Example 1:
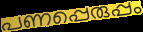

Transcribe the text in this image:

പണപ്പെരുപ്പം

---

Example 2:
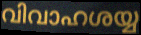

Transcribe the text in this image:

വിവാഹശയ്യ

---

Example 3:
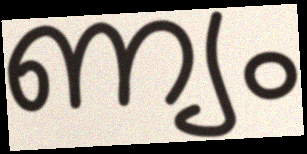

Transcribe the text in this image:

ണ്യം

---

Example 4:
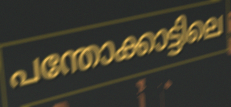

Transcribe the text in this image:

പന്തോക്കാട്ടിലെ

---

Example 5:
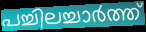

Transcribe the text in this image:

പച്ചിലച്ചാർത്ത്